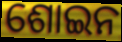
ଶୋଇନ